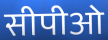
सीपीओ